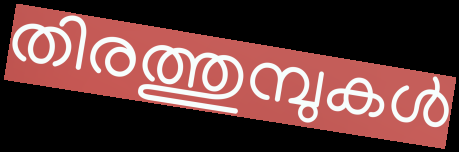
തിരത്തുമ്പുകൾ